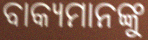
ବାକ୍ୟମାନଙ୍କୁ